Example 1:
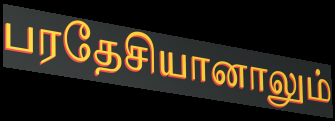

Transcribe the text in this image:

பரதேசியானாலும்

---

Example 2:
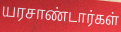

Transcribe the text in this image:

யரசாண்டார்கள்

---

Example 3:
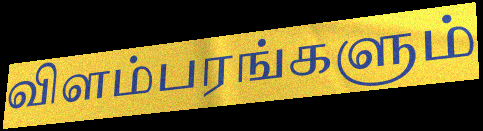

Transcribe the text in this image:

விளம்பரங்களும்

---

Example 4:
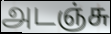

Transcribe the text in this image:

அடஞ்சு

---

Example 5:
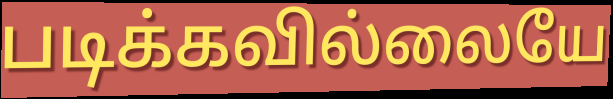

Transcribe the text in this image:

படிக்கவில்லையே